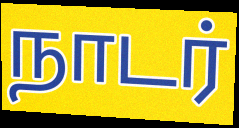
நாடர்